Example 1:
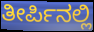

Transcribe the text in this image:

ತೀರ್ಪಿನಲ್ಲಿ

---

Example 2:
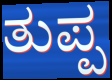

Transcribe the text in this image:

ತುಪ್ಪ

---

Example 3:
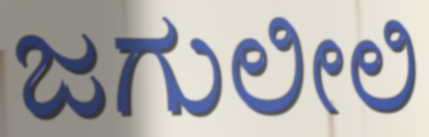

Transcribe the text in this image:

ಜಗುಲೀಲಿ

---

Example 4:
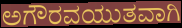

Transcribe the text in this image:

ಅಗೌರವಯುತವಾಗಿ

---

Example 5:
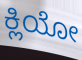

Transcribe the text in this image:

ಕ್ಲಿಯೋ